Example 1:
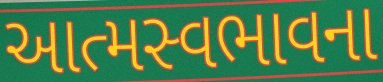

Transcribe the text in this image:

આત્મસ્વભાવના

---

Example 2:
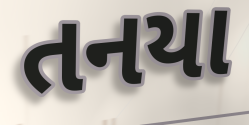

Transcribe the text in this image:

તનયા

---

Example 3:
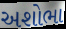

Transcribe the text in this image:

અશોભા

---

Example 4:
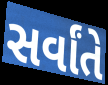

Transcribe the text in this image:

સર્વાંતે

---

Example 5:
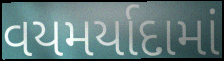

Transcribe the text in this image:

વયમર્યાદામાં